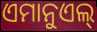
ଏମାନୁଏଲ୍